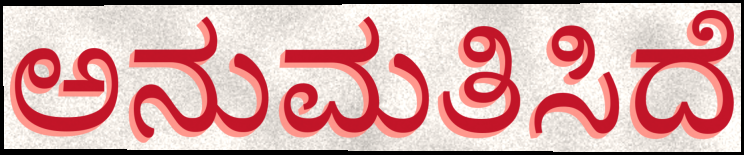
ಅನುಮತಿಸಿದೆ